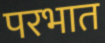
परभात